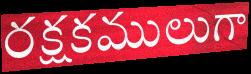
రక్షకములుగా